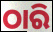
ଠାରି